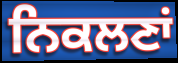
ਨਿਕਲਣਾਂ